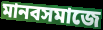
মানবসমাজে